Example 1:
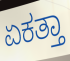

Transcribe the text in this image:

ಏಕತ್ತಾ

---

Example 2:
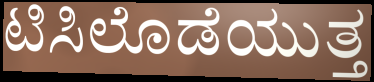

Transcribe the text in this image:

ಟಿಸಿಲೊಡೆಯುತ್ತ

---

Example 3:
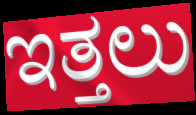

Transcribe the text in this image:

ಇತ್ತಲು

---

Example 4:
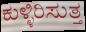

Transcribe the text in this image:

ಕುಳ್ಳಿರಿಸುತ್ತ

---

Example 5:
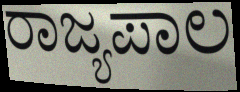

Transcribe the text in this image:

ರಾಜ್ಯಪಾಲ